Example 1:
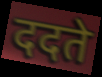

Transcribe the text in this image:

ददते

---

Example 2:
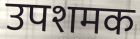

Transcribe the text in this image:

उपशमक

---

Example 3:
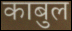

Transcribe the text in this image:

काबुल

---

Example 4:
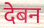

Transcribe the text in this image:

देबन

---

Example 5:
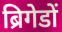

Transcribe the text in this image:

ब्रिगेडों